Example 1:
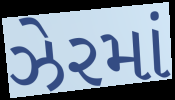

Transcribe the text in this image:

ઝેરમાં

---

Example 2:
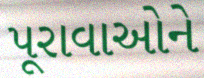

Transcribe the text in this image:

પૂરાવાઓને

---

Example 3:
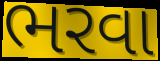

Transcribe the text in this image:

ભરવા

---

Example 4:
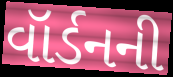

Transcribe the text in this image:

વૉર્ડનની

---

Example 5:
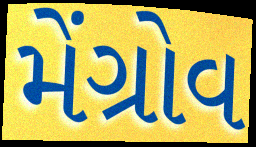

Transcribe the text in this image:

મેંગ્રોવ